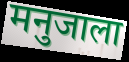
मनुजाला